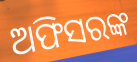
ଅଫିସରଙ୍କ